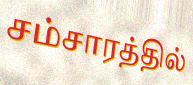
சம்சாரத்தில்